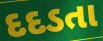
દદડતા